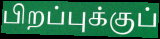
பிறப்புக்குப்